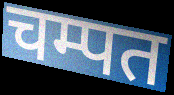
चम्पत